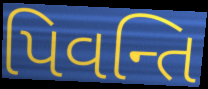
પિવન્તિ